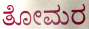
ತೋಮರ